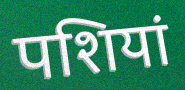
पशियां